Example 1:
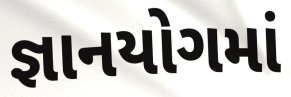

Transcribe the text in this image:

જ્ઞાનયોગમાં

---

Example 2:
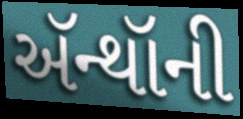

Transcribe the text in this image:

ઍન્થૉની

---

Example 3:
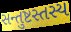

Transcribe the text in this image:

સન્તુષ્ટસ્તસ્ય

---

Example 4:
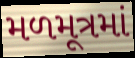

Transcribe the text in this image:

મળમૂત્રમાં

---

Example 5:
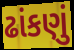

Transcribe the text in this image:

ઢાંકણું